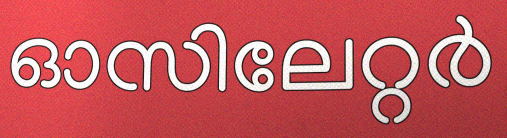
ഓസിലേറ്റർ